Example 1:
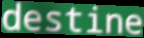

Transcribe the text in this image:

destine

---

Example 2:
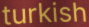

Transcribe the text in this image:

turkish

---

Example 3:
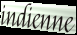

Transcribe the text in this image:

indienne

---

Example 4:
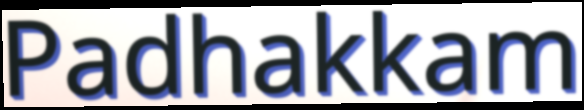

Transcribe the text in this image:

Padhakkam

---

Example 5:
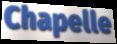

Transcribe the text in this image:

Chapelle